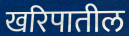
खरिपातील